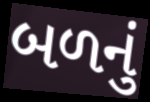
બળનું